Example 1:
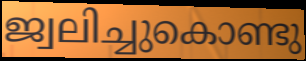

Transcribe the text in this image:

ജ്വലിച്ചുകൊണ്ടു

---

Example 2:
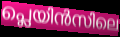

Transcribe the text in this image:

പ്ലെയിൻസിലെ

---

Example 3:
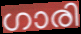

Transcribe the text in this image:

ഗാരി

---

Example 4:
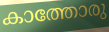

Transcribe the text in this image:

കാത്തോരു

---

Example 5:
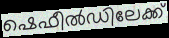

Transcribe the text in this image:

ഷെഫീൽഡിലേക്ക്